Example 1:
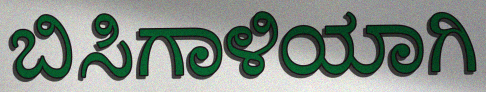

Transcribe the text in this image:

ಬಿಸಿಗಾಳಿಯಾಗಿ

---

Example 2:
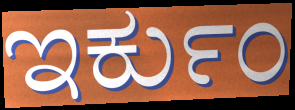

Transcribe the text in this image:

ಇರ್ಕುಂ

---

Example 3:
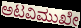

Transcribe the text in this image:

ಅಟವಿಮುಖೇ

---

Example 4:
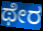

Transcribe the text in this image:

ಥೇರ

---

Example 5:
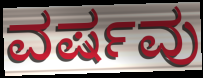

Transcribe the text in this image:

ವರ್ಷವು